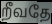
றீவதே